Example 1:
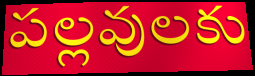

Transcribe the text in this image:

పల్లవులకు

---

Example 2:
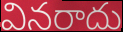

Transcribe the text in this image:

వినరాదు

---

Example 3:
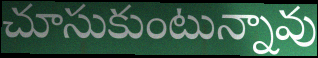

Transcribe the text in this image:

చూసుకుంటున్నావు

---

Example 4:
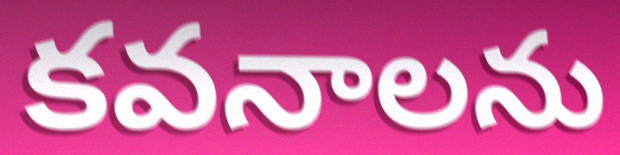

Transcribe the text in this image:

కవనాలను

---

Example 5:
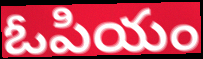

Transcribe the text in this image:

ఓపియం